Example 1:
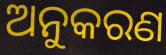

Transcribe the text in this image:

ଅନୁକରଣ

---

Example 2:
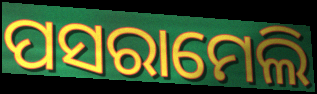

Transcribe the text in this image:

ପସରାମେଲି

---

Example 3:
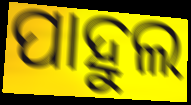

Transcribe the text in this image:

ପାହୁଲ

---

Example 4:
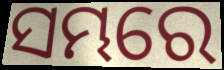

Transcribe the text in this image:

ସମ୍ଭରେ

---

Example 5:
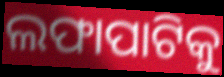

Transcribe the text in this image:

ଲଫାପାଟିକୁ